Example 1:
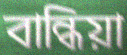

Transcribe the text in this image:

বান্ধিয়া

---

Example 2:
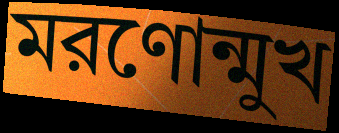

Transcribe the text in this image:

মরণোন্মুখ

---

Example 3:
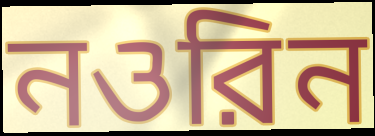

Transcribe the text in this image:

নওরিন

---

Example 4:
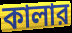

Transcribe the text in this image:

কালার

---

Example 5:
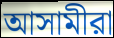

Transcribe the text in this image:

আসামীরা